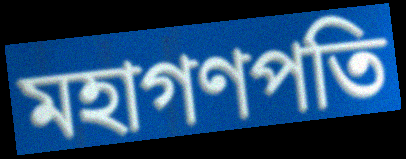
মহাগণপতি